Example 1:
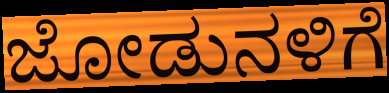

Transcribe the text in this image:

ಜೋಡುನಳಿಗೆ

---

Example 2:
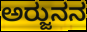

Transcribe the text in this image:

ಅರ್‍ಜುನನ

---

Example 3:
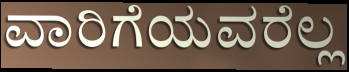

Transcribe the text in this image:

ವಾರಿಗೆಯವರೆಲ್ಲ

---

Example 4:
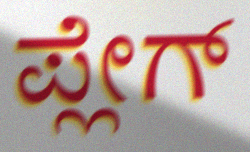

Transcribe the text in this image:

ಪ್ಲೇಗ್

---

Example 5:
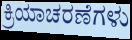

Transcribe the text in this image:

ಕ್ರಿಯಾಚರಣೆಗಳು